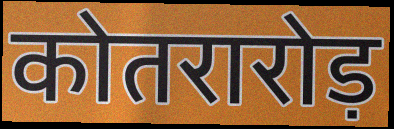
कोतरारोड़